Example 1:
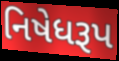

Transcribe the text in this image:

નિષેધરૂપ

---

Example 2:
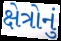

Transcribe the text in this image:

ક્ષેત્રોનું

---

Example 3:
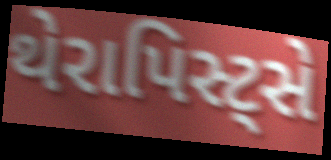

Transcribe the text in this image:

થેરાપિસ્ટ્સે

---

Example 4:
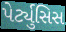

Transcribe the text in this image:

પેર્ટ્યુસિસ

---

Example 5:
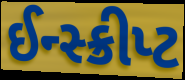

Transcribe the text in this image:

ઈન્સ્ક્રીપ્ટ